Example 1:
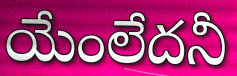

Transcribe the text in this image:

యేంలేదనీ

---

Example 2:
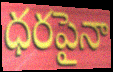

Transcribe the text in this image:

ధరపైనా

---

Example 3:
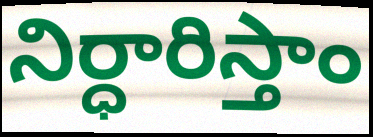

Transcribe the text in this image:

నిర్ధారిస్తాం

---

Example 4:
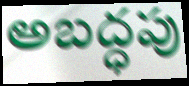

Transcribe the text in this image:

అబద్ధపు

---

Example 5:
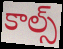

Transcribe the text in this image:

కాల్స్